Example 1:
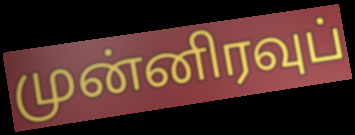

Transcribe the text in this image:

முன்னிரவுப்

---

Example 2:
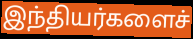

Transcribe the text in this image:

இந்தியர்களைச்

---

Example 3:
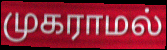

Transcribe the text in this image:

முகராமல்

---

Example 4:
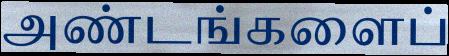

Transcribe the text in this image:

அண்டங்களைப்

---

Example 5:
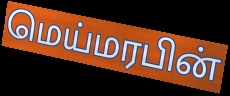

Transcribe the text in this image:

மெய்மரபின்